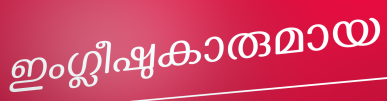
ഇംഗ്ലീഷുകാരുമായ